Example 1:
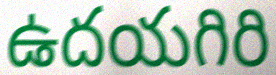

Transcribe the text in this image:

ఉదయగిరి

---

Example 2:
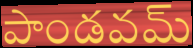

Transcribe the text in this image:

పాండవమ్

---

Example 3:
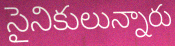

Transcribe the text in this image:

సైనికులున్నారు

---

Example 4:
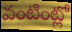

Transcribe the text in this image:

వంటింట్లో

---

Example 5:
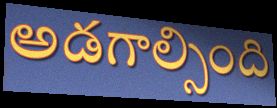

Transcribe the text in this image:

అడగాల్సింది